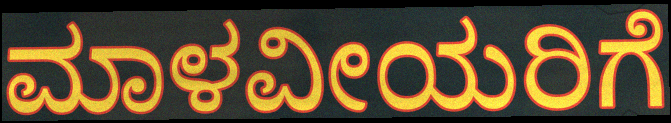
ಮಾಳವೀಯರಿಗೆ